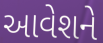
આવેશને